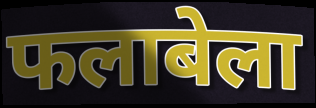
फलाबेला